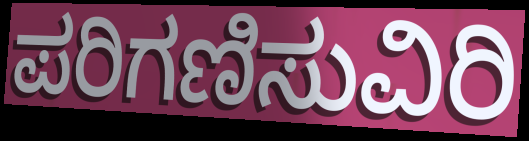
ಪರಿಗಣಿಸುವಿರಿ